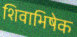
शिवाभिषेक